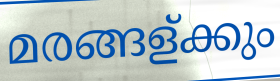
മരങ്ങള്ക്കും